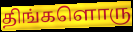
திங்களொரு